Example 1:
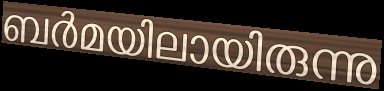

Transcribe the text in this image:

ബർമയിലായിരുന്നു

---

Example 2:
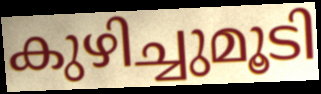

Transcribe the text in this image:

കുഴിച്ചുമൂടി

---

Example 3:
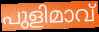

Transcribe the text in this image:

പുളിമാവ്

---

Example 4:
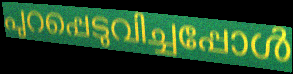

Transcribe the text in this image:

പുറപ്പെടുവിച്ചപ്പോൾ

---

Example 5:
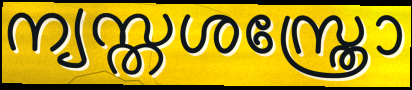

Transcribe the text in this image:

ന്യസ്തശസ്ത്രോ